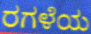
ರಗಳೆಯ